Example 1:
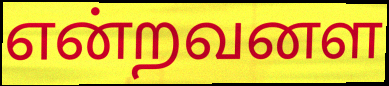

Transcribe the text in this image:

என்றவனள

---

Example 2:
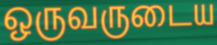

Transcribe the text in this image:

ஒருவருடைய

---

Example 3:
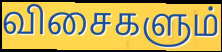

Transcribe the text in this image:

விசைகளும்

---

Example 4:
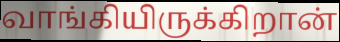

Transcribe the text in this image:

வாங்கியிருக்கிறான்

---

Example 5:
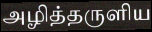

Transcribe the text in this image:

அழித்தருளிய